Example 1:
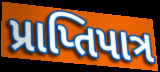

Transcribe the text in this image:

પ્રાપ્તિપાત્ર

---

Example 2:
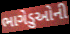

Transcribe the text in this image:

ભાગેડુઓની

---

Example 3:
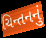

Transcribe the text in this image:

ચિન્તનનું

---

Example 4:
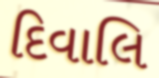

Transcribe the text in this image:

દિવાલિ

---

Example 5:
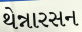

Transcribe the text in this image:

થેન્નારસન